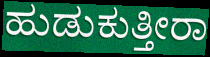
ಹುಡುಕುತ್ತೀರಾ